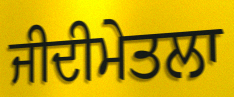
ਜੀਦੀਮੇਤਲਾ